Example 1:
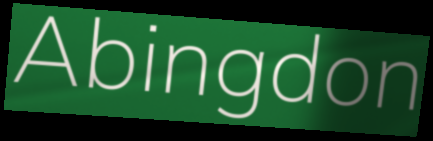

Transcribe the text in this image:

Abingdon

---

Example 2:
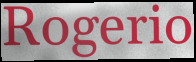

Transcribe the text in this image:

Rogerio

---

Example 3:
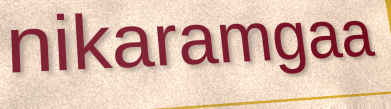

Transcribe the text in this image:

nikaramgaa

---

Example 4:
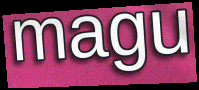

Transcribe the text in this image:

magu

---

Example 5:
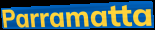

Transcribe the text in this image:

Parramatta